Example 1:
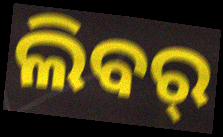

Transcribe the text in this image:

ଲିବର୍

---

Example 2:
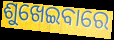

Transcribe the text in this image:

ଶୁଖେଇବାରେ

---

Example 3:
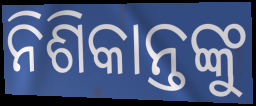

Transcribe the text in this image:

ନିଶିକାନ୍ତଙ୍କୁ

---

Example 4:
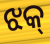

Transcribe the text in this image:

ଝକ୍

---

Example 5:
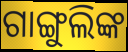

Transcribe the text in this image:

ଗାଙ୍ଗୁଲିଙ୍କ